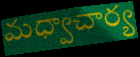
మధ్వాచార్య